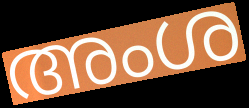
അംശ